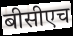
बीसीएच